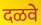
दळवे